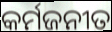
କର୍ମଜନୀତ